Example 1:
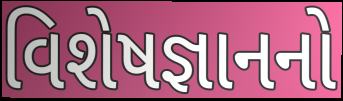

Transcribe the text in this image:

વિશેષજ્ઞાનનો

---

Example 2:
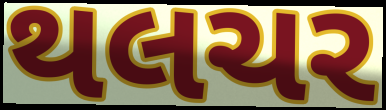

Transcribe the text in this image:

થલચર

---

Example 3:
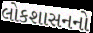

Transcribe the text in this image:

લોકશાસનનો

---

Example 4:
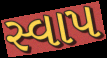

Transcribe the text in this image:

સ્વાપ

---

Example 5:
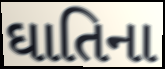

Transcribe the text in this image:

ઘાતિના